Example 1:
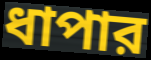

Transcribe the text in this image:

ধাপার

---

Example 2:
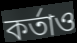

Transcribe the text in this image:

কর্তাও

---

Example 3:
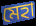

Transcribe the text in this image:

মেহা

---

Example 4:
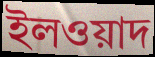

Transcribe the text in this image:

ইলওয়াদ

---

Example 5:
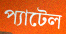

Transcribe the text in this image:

প্যাটেল